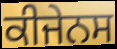
ਕੀਜੇਨਸ